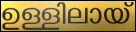
ഉള്ളിലായ്